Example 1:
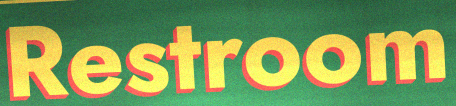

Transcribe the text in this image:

Restroom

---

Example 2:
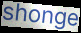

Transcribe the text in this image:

shonge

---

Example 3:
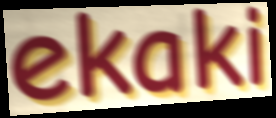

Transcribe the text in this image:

ekaki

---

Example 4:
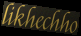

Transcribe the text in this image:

likhechho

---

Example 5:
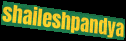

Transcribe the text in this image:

shaileshpandya